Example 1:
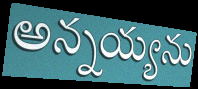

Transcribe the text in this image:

అన్నయ్యను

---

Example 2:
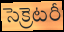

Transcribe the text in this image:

సెక్రెటరీ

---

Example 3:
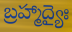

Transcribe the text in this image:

బ్రహ్మాద్యైః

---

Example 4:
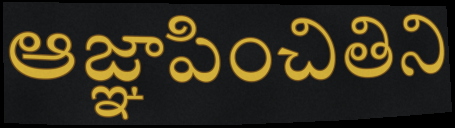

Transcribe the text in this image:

ఆజ్ఞాపించితిని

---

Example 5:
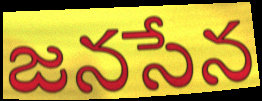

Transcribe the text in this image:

జనసేన